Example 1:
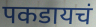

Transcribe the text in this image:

पकडायचं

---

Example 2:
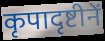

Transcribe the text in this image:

कृपादृष्टीनें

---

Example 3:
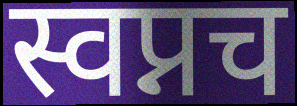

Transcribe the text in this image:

स्वप्नच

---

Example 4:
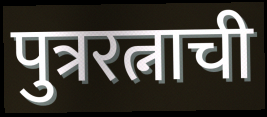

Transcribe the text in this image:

पुत्ररत्नाची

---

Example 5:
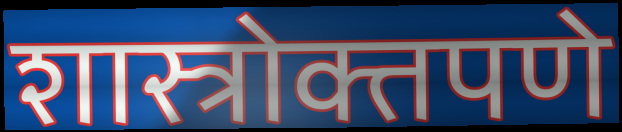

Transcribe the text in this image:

शास्त्रोक्तपणे